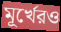
মূর্খেরও